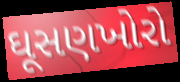
ઘૂસણખોરો